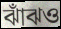
ঝাঁঝও